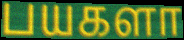
பயகளா